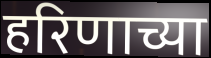
हरिणाच्या